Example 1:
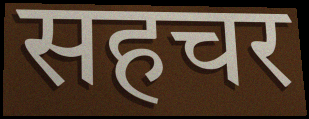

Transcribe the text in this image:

सहचर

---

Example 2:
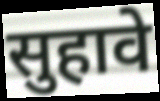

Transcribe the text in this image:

सुहावे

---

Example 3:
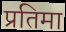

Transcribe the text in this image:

प्रतिमा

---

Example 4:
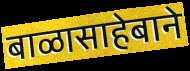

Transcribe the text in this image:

बाळासाहेबाने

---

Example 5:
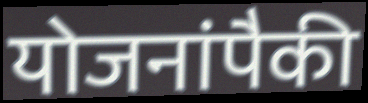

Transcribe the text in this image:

योजनांपैकी